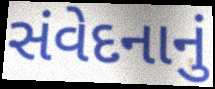
સંવેદનાનું